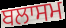
ਬਲਾਸਮ